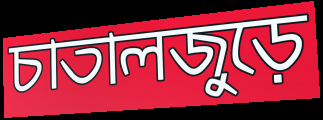
চাতালজুড়ে